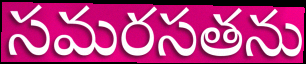
సమరసతను